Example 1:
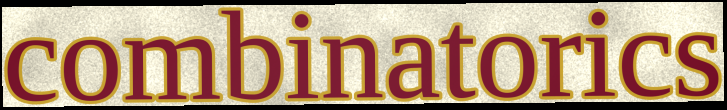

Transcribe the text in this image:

combinatorics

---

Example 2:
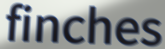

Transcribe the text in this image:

finches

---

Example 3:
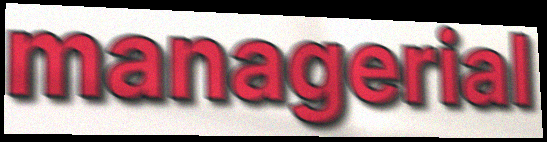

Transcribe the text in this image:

managerial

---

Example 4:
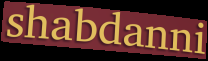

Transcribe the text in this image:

shabdanni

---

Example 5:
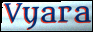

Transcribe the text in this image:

Vyara